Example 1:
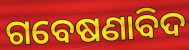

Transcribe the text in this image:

ଗବେଷଣାବିଦ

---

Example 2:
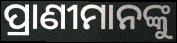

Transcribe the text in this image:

ପ୍ରାଣୀମାନଙ୍କୁ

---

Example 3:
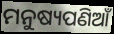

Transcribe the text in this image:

ମନୁଷ୍ୟପଣିଆଁ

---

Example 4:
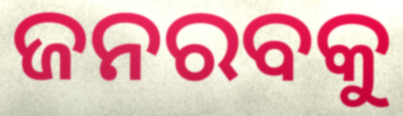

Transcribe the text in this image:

ଜନରବକୁ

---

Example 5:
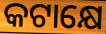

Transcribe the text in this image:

କଟାକ୍ଷେ